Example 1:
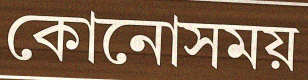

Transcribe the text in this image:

কোনোসময়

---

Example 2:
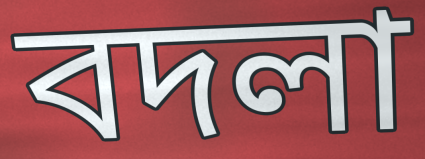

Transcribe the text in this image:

বদলা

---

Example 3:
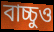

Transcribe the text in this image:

বাচ্চুও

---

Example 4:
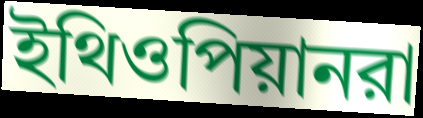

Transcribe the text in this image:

ইথিওপিয়ানরা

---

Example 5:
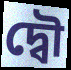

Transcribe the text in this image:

দ্বৌ